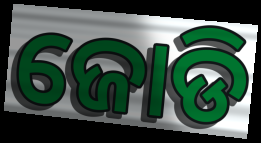
ଜୋଡି